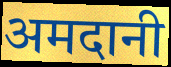
अमदानी